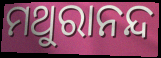
ମଥୁରାନନ୍ଦ